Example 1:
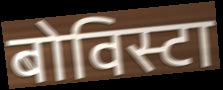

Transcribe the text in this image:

बोविस्टा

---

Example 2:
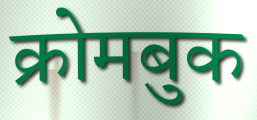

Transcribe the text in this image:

क्रोमबुक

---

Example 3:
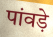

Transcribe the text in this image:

पांवड़े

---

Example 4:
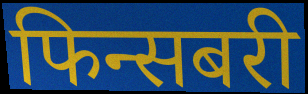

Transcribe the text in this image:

फिन्सबरी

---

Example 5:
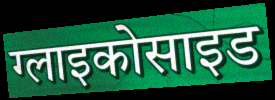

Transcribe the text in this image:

ग्लाइकोसाइड